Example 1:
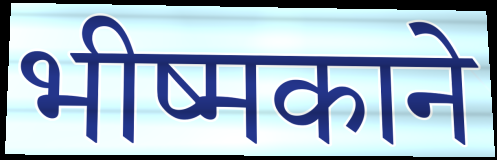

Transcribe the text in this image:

भीष्मकाने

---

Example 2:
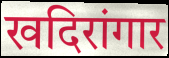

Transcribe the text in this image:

खदिरांगार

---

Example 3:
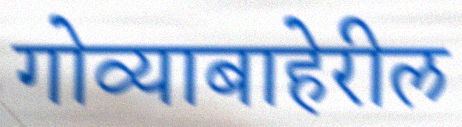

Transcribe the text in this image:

गोव्याबाहेरील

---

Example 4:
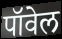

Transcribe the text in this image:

पॉवेल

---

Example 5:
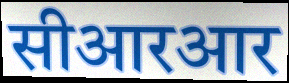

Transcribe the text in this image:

सीआरआर